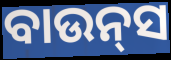
ବାଉନ୍‌ସ